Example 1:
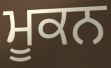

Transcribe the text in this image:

ਮੂਕਨ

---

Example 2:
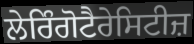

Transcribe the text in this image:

ਲੇਰਿੰਗੋਟੈਰੇਸਿਟੀਜ਼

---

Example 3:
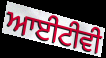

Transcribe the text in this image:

ਆਈਟੀਵੀ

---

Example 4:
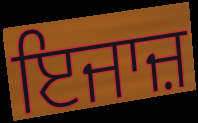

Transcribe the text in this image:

ਇਜਾਜ਼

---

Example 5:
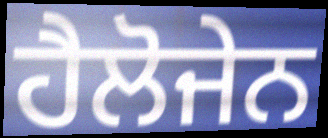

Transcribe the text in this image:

ਹੈਲੋਜੇਨ